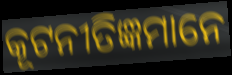
କୂଟନୀତିଜ୍ଞମାନେ